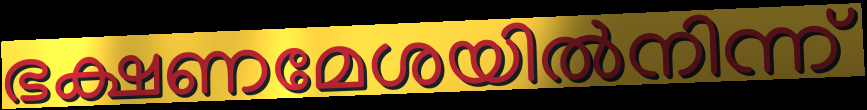
ഭക്ഷണമേശയിൽനിന്ന്